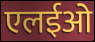
एलईओ